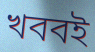
খববই